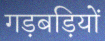
गड़बड़ियों